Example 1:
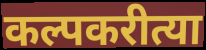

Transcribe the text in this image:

कल्पकरीत्या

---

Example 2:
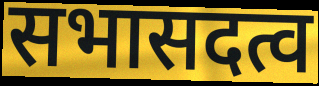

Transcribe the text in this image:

सभासदत्व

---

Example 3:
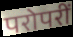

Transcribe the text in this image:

परोपरीं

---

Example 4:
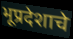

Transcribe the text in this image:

भूप्रदेशाचे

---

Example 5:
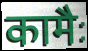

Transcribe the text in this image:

कामैः